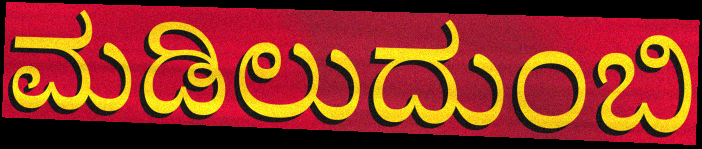
ಮಡಿಲುದುಂಬಿ